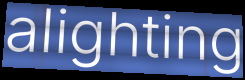
alighting